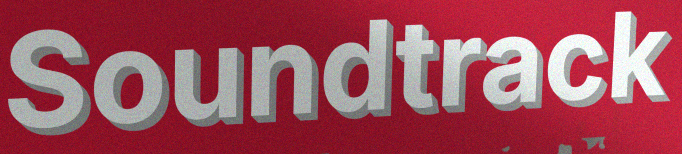
Soundtrack